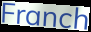
Franch